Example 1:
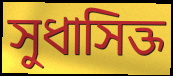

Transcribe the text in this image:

সুধাসিক্ত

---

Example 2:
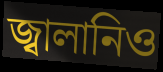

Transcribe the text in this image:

জ্বালানিও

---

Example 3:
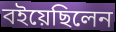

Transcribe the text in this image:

বইয়েছিলেন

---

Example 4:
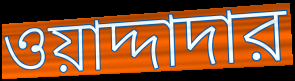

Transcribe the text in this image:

ওয়াদ্দাদার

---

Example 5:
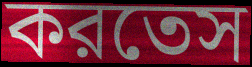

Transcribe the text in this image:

করতেস